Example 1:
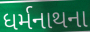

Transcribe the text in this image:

ધર્મનાથના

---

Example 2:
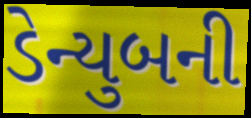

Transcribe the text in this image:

ડેન્યુબની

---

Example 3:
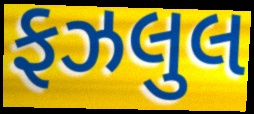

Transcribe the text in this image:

ફઝલુલ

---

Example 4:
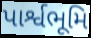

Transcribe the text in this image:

પાર્શ્વભૂમિ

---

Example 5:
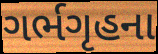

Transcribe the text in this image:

ગર્ભગૃહના